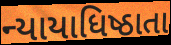
ન્યાયાધિષ્ઠાતા